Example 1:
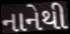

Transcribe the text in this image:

નાનેથી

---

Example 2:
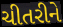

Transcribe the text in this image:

ચીતરીને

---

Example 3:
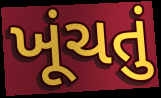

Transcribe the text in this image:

ખૂંચતું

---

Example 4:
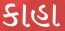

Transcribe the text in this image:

કાહા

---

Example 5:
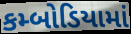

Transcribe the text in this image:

કમ્બોડિયામાં